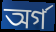
অৰ্গ